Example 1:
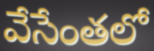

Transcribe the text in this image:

వేసేంతలో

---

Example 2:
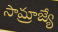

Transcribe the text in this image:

సామ్రాజ్యే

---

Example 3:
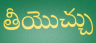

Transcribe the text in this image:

తీయొచ్చు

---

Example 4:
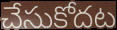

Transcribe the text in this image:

చేసుకోదట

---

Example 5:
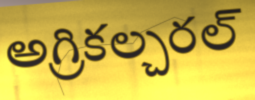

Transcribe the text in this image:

అగ్రికల్చరల్